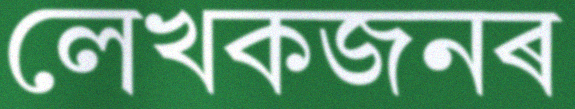
লেখকজনৰ